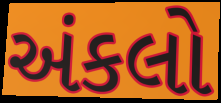
અંકલો